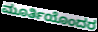
ಮೂರ್ತಿಯೊಂದರ